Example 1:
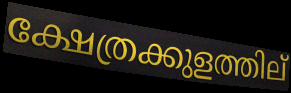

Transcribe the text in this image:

ക്ഷേത്രക്കുളത്തില്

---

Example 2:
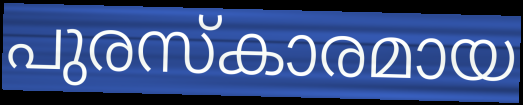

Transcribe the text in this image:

പുരസ്കാരമായ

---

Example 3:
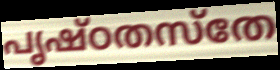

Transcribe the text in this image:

പൃഷ്ഠതസ്തേ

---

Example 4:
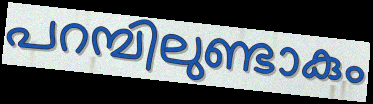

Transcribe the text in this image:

പറമ്പിലുണ്ടാകും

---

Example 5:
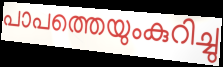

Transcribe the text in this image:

പാപത്തെയുംകുറിച്ചു